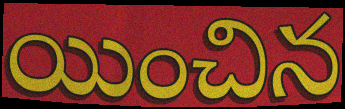
యించిన